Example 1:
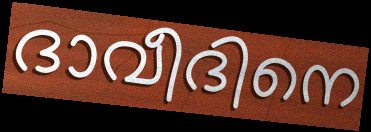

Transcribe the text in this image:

ദാവീദിനെ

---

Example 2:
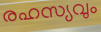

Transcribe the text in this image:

രഹസ്യവും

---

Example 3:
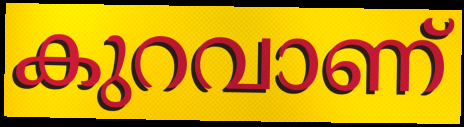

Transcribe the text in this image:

കുറവാണ്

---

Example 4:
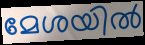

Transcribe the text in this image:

മേശയിൽ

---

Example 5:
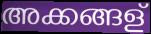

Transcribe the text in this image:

അക്കങ്ങള്